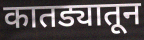
कातड्यातून